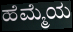
ಹೆಮ್ಮೆಯ